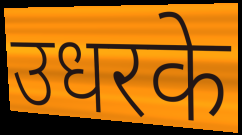
उधरके